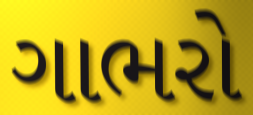
ગાભરો